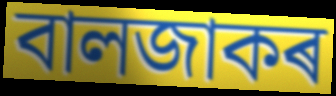
বালজাকৰ